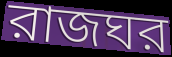
রাজঘর